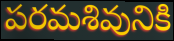
పరమశివునికి